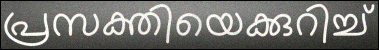
പ്രസക്തിയെക്കുറിച്ച്